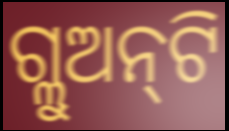
ଗ୍ଲୁଅନ୍‍ଟି